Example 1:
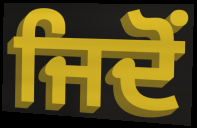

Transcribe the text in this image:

ਜਿਦੋਂ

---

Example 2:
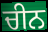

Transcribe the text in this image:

ਚੀਨ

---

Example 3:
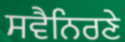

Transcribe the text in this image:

ਸਵੈਨਿਰਣੇ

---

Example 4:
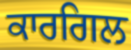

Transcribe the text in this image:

ਕਾਰਗਿਲ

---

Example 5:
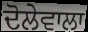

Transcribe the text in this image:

ਦੋਲੇਵਾਲਾ